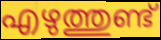
എഴുത്തുണ്ട്